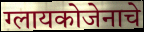
ग्लायकोजेनाचे